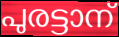
പുരട്ടാന്